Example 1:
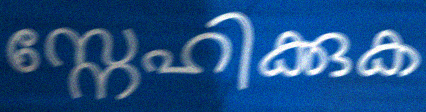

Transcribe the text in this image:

സ്നേഹിക്കുക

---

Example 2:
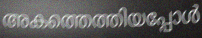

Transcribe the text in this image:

അകത്തെത്തിയപ്പോൾ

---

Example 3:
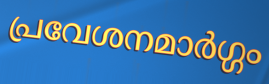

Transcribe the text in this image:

പ്രവേശനമാർഗ്ഗം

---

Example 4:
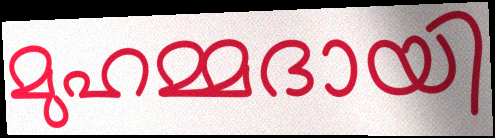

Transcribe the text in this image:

മുഹമ്മദായി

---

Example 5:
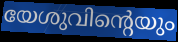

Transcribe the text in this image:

യേശുവിന്റെയും